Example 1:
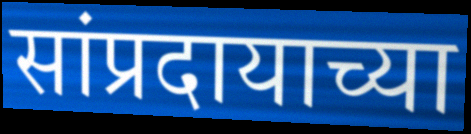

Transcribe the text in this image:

सांप्रदायाच्या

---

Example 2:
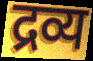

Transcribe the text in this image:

द्रव्य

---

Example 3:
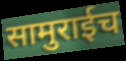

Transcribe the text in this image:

सामुराईच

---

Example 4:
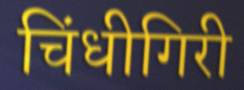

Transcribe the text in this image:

चिंधीगिरी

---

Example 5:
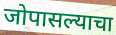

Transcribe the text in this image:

जोपासल्याचा